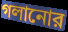
গলানোর